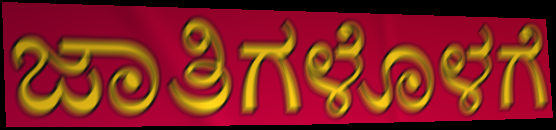
ಜಾತಿಗಳೊಳಗೆ